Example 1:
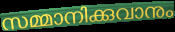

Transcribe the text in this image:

സമ്മാനിക്കുവാനും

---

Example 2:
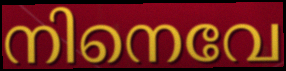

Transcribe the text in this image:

നിനെവേ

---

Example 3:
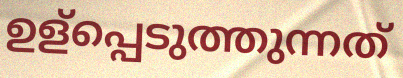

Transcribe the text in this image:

ഉള്പ്പെടുത്തുന്നത്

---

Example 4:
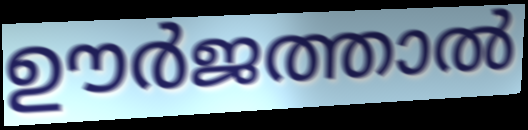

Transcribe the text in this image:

ഊർജത്താൽ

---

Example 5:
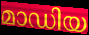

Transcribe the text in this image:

മാഡിയ